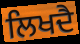
ਲਿਖਦੈ